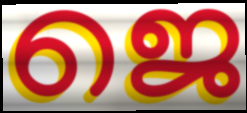
ജെ